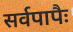
सर्वपापैः